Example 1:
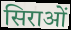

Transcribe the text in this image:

सिराओं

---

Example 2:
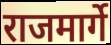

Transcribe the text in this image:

राजमार्गे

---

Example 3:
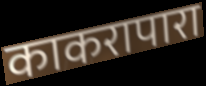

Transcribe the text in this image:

काकरापारा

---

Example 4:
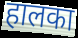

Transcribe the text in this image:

हालका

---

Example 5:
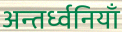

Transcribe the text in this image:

अन्तर्ध्वनियाँ